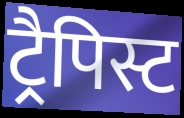
ट्रैपिस्ट